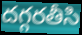
దగ్గరతీసి